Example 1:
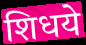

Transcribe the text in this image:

शिधये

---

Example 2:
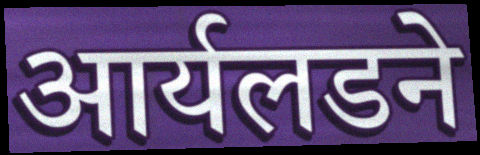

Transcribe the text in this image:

आर्यलडने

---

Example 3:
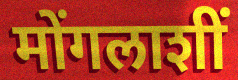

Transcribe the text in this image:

मोंगलाशीं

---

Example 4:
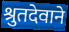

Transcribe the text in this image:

श्रुतदेवाने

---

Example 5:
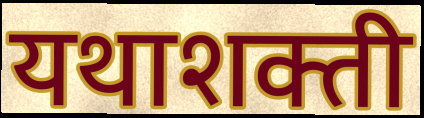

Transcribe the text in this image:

यथाशक्‍ती